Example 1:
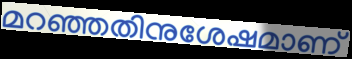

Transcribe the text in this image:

മറഞ്ഞതിനുശേഷമാണ്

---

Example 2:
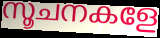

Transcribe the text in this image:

സൂചനകളേ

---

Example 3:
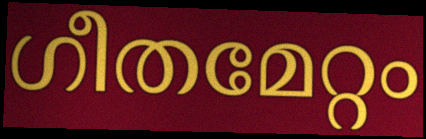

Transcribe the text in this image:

ഗീതമേറ്റം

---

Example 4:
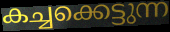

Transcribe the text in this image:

കച്ചക്കെട്ടുന്ന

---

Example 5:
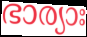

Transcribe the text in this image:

ഭാര്യാഃ